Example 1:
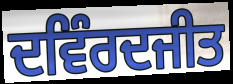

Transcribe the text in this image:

ਦਵਿੰਰਦਜੀਤ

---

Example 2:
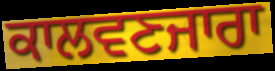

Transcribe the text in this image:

ਕਾਲਵਣਜਾਰਾ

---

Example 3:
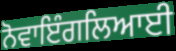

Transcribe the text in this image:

ਨੋਵਾਇੰਗਲਿਆਈ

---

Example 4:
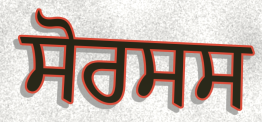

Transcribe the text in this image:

ਸੋਰਸਸ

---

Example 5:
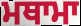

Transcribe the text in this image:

ਮਥਾਮਾ